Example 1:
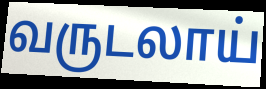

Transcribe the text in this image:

வருடலாய்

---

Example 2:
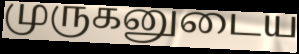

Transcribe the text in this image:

முருகனுடைய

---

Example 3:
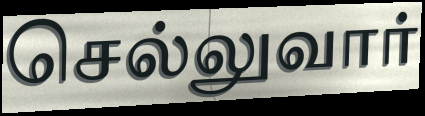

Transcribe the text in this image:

செல்லுவார்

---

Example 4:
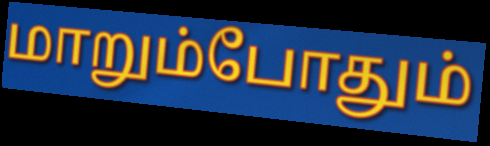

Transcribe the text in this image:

மாறும்போதும்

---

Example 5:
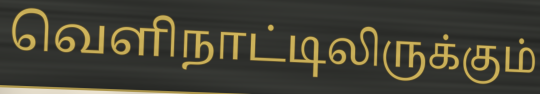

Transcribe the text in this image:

வெளிநாட்டிலிருக்கும்